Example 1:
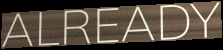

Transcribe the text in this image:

ALREADY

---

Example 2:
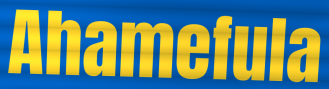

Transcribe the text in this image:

Ahamefula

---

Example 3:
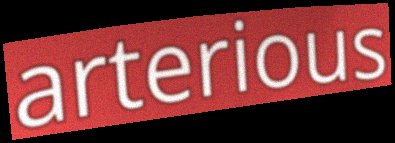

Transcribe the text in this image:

arterious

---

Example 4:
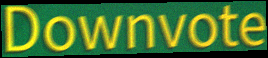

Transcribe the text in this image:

Downvote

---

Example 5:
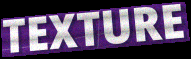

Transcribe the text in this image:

TEXTURE